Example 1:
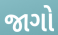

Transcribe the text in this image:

જાગો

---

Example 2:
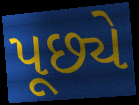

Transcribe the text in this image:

પૂછ્યે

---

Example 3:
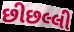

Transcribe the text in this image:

છીછલ્લી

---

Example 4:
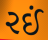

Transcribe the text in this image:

રઈં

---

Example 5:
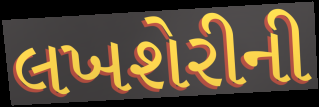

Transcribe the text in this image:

લખશેરીની